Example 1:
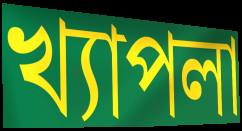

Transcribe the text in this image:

খ্যাপলা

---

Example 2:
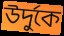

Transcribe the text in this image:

উর্দুকে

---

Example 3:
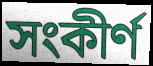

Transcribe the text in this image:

সংকীর্ণ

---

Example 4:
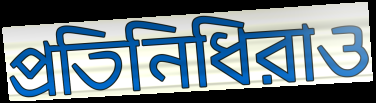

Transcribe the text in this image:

প্রতিনিধিরাও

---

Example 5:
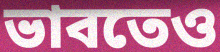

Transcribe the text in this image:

ভাবতেও